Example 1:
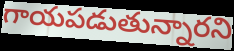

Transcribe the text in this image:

గాయపడుతున్నారని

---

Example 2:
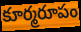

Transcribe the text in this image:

కూర్మరూపం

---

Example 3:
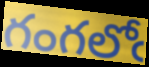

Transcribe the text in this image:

గంగలోఁ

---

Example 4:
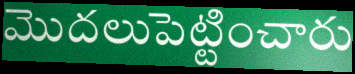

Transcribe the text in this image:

మొదలుపెట్టించారు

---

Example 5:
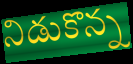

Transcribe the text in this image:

నిడుకొన్న